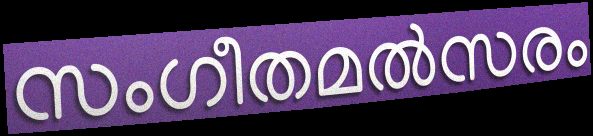
സംഗീതമൽസരം